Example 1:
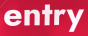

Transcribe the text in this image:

entry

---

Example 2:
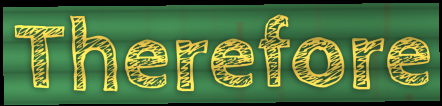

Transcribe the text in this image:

Therefore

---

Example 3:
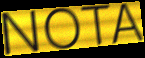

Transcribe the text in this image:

NOTA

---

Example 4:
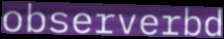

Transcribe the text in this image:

observerbd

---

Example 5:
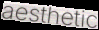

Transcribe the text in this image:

aesthetic